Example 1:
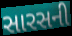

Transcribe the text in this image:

સારસની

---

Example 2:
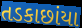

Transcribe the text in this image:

તડકાછાંયા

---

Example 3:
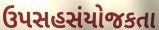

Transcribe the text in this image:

ઉપસહસંયોજકતા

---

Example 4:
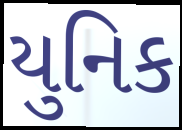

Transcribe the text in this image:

યુનિક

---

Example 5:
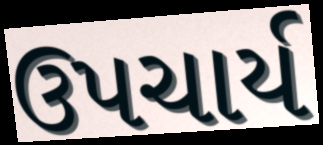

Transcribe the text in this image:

ઉપચાર્ય